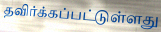
தவிர்க்கப்பட்டுள்ளது